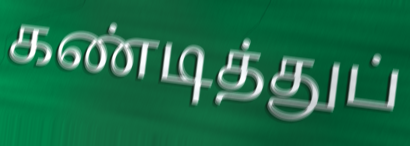
கண்டித்துப்